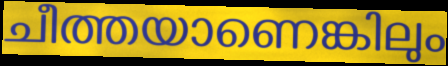
ചീത്തയാണെങ്കിലും